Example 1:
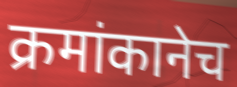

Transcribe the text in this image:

क्रमांकानेच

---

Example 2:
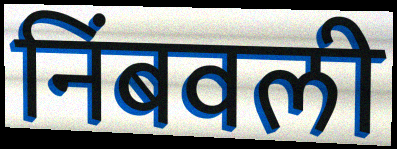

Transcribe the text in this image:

निंबवली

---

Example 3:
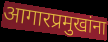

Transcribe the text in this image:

आगारप्रमुखांना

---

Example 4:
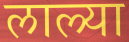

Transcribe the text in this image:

लाल्या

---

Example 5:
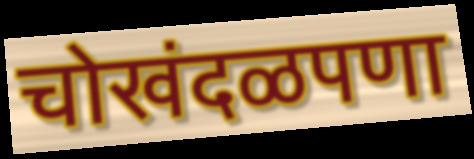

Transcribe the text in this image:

चोखंदळपणा